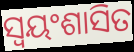
ସ୍ୱୟଂଶାସିତ